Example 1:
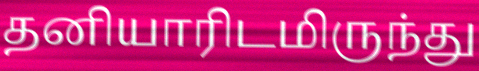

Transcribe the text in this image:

தனியாரிடமிருந்து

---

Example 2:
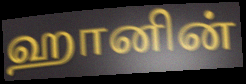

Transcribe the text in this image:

ஹானின்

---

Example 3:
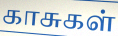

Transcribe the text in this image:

காசுகள்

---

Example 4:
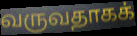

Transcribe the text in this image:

வருவதாகக்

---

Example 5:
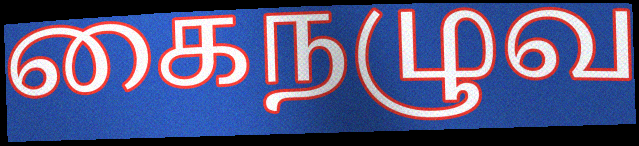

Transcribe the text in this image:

கைநழுவ